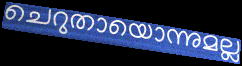
ചെറുതായൊന്നുമല്ല